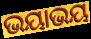
ଭୟାଭୟ